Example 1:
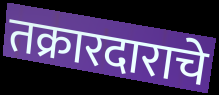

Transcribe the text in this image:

तक्रारदाराचे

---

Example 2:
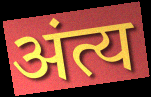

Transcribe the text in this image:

अंत्य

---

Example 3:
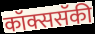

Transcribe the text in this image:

कॉक्ससॅकी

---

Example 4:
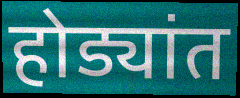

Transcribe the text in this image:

होड्यांत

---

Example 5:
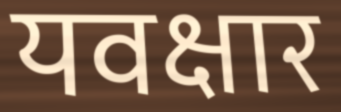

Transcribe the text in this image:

यवक्षार